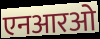
एनआरओ